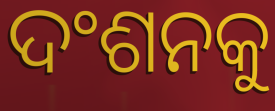
ଦଂଶନକୁ